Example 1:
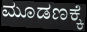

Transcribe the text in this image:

ಮೂಡಣಕ್ಕೆ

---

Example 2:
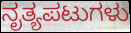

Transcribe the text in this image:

ನೃತ್ಯಪಟುಗಳು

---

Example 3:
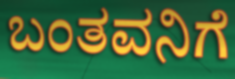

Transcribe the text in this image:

ಬಂತವನಿಗೆ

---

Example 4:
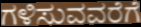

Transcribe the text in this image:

ಗಳಿಸುವವರೆಗೆ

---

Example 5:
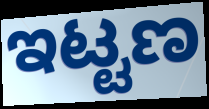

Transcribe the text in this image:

ಇಟ್ಟಣ